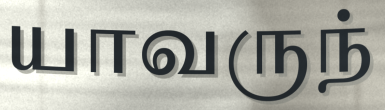
யாவருந்